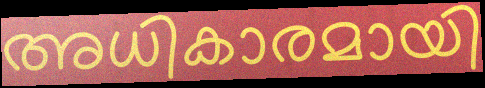
അധികാരമായി